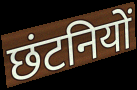
छंटनियों